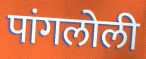
पांगलोली